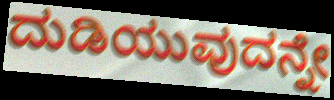
ದುಡಿಯುವುದನ್ನೇ